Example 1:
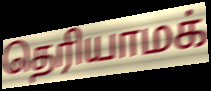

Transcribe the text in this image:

தெரியாமக்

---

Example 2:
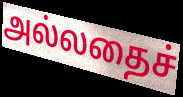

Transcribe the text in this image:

அல்லதைச்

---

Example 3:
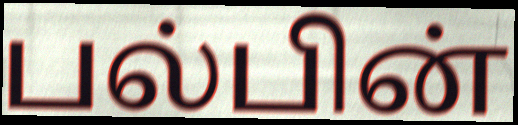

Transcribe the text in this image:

பல்பின்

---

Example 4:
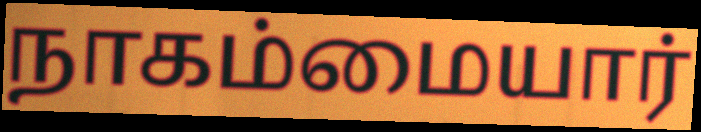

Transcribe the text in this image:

நாகம்மையார்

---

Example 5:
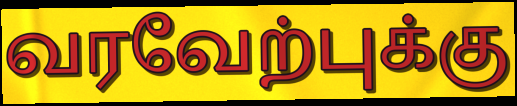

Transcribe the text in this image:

வரவேற்புக்கு